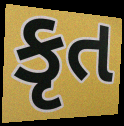
કૃત